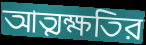
আত্মক্ষতির